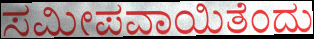
ಸಮೀಪವಾಯಿತೆಂದು